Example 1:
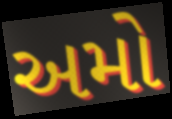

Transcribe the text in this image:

અમો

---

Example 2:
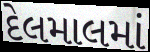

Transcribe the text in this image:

દેલમાલમાં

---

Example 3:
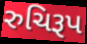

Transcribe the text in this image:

રુચિરૂપ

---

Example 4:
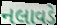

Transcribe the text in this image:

નલાવડે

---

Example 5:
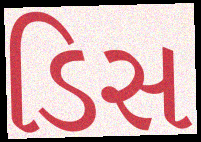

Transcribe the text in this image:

ડિસ